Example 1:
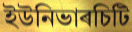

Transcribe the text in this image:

ইউনিভাৰচিটি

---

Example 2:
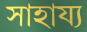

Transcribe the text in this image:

সাহায্য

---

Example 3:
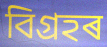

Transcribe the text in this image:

বিগ্ৰহৰ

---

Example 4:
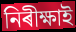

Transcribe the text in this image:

নিৰীক্ষাই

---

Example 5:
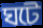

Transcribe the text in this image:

ঘটে